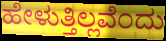
ಹೇಳುತ್ತಿಲ್ಲವೆಂದು